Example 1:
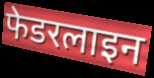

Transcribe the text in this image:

फेडरलाइन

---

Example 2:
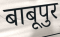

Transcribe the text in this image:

बाबूपुर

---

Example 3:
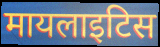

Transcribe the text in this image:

मायलाइटिस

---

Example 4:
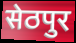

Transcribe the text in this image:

सेठपुर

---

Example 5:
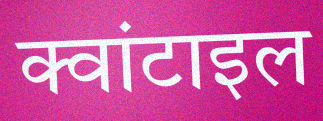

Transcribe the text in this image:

क्वांटाइल